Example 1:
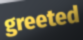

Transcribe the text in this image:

greeted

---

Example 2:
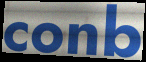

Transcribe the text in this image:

conb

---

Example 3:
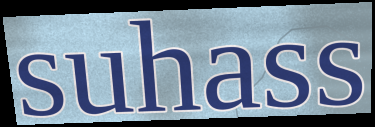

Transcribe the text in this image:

suhass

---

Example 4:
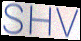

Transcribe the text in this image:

SHV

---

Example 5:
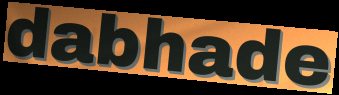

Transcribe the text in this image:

dabhade